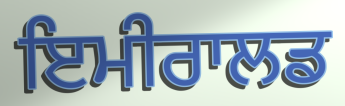
ਇਮੀਰਾਲਡ